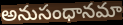
అనుసంధానమా